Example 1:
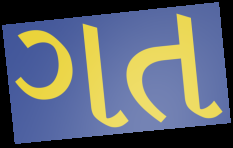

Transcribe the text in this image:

ગત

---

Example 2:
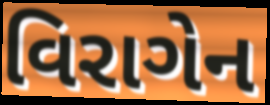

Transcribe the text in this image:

વિરાગેન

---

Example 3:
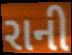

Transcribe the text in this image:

રાની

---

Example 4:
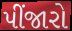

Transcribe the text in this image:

પીંજારો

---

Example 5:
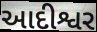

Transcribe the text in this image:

આદીશ્વર